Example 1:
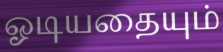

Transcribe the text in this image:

ஓடியதையும்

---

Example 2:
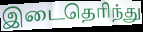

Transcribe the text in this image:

இடைதெரிந்து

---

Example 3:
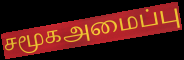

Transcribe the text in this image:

சமூகஅமைப்பு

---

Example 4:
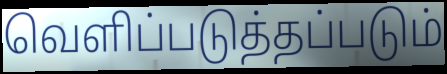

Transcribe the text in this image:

வெளிப்படுத்தப்படும்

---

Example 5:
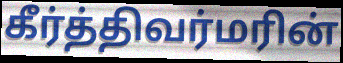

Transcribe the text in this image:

கீர்த்திவர்மரின்